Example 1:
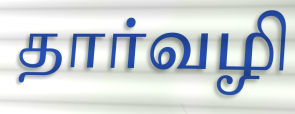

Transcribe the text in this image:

தார்வழி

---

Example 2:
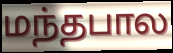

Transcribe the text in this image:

மந்தபால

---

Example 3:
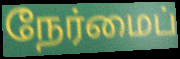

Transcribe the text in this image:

நேர்மைப்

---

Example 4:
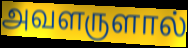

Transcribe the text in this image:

அவளருளால்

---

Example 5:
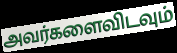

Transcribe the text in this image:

அவர்களைவிடவும்